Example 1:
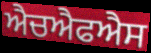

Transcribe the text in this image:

ਐਚਐਫਐਸ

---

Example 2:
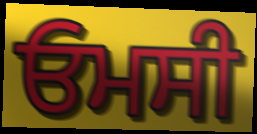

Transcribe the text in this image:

ਓਮਸੀ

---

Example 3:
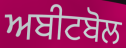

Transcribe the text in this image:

ਅਬੀਟਬੋਲ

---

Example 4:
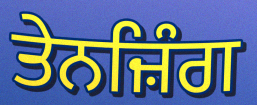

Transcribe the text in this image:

ਤੇਨਜ਼ਿੰਗ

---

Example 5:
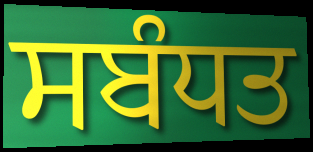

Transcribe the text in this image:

ਸਬੰਧਤ